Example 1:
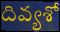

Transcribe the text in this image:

దివ్యశో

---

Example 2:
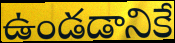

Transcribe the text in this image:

ఉండడానికే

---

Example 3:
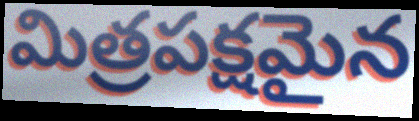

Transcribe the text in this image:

మిత్రపక్షమైన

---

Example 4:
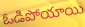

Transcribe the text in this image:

ఓడిపోయాయి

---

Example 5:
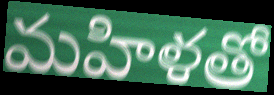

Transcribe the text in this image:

మహిళతో